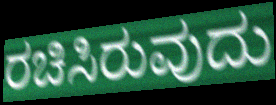
ರಚಿಸಿರುವುದು